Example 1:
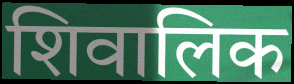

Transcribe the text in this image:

शिवालिक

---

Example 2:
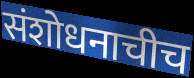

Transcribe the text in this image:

संशोधनाचीच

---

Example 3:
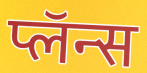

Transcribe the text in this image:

प्लॅन्स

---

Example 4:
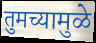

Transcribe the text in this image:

तुमच्यामुळे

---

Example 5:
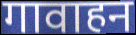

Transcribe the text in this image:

गावाहन